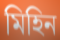
মিহিন